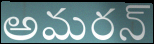
అమరన్